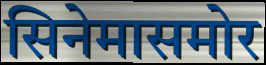
सिनेमासमोर